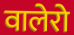
वालेरो